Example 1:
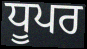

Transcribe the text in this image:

ਧੂਪਰ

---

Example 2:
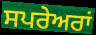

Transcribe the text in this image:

ਸਪਰੇਅਰਾਂ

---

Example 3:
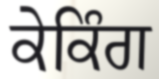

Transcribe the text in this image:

ਕੇਕਿੰਗ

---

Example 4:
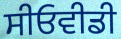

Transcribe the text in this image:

ਸੀਓਵੀਡੀ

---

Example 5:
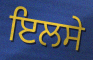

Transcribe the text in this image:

ਇਲਸੇ